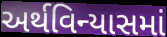
અર્થવિન્યાસમાં